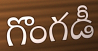
గొంగడీ